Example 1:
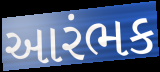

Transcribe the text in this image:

આરંભક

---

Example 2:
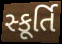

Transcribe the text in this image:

સ્કૂર્તિ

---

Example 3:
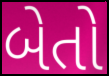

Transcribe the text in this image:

બેતો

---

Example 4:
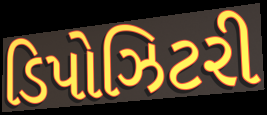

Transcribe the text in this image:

ડિપોઝિટરી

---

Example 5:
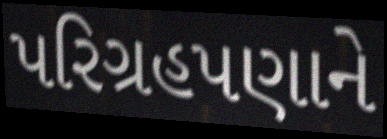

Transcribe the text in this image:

પરિગ્રહપણાને